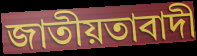
জাতীয়তাবাদী